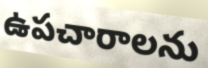
ఉపచారాలను